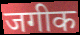
जगीक